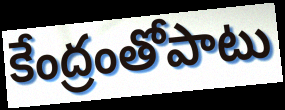
కేంద్రంతోపాటు